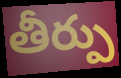
తీర్పు